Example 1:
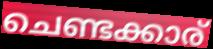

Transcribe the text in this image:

ചെണ്ടക്കാര്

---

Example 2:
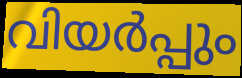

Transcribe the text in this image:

വിയർപ്പും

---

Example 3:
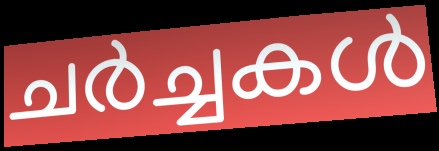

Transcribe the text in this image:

ചർച്ചകൾ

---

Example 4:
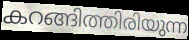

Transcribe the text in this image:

കറങ്ങിത്തിരിയുന്ന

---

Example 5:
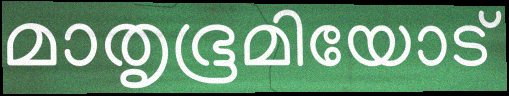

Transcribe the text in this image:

മാതൃഭൂമിയോട്